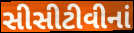
સીસીટીવીનાં